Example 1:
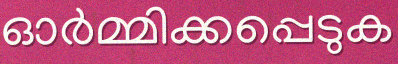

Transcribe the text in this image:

ഓർമ്മിക്കപ്പെടുക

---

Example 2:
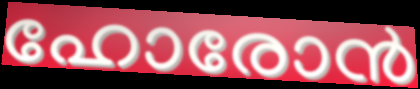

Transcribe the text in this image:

ഹോരോൻ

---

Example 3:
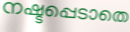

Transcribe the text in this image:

നഷ്ടപ്പെടാതെ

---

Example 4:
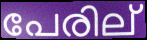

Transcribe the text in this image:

പേരില്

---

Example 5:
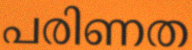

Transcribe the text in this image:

പരിണത